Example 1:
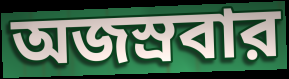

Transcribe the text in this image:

অজস্রবার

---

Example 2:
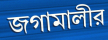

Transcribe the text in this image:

জগামালীর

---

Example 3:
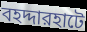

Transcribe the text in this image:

বহদ্দারহাটে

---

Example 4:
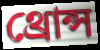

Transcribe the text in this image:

থ্রোন্স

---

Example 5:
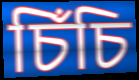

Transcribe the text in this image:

চিঁচি